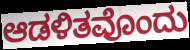
ಆಡಳಿತವೊಂದು